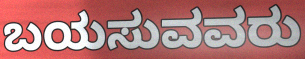
ಬಯಸುವವರು